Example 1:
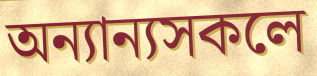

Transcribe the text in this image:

অন্যান্যসকলে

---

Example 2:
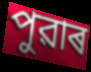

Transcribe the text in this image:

পুৱাৰ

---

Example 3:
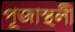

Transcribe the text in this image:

পূজাস্থলী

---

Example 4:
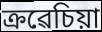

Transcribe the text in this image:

ক্ৰৱেচিয়া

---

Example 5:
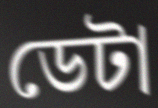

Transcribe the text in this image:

ডেটা